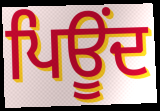
ਪਿਊਂਦ